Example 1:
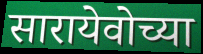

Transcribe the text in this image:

सारायेवोच्या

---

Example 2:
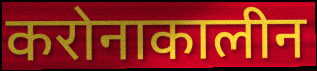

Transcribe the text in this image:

करोनाकालीन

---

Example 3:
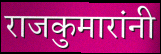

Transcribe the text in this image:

राजकुमारांनी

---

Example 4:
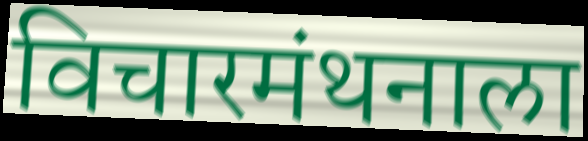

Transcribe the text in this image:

विचारमंथनाला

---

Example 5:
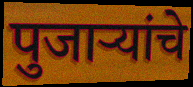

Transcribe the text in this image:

पुजाऱ्यांचे